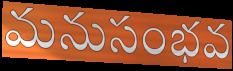
మనుసంభవ